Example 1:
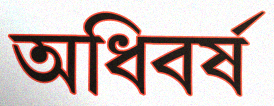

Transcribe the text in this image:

অধিবর্ষ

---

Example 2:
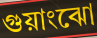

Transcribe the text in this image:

গুয়াংঝো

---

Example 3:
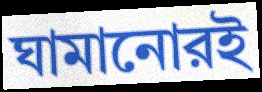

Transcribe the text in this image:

ঘামানোরই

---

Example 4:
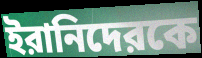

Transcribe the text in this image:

ইরানিদেরকে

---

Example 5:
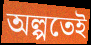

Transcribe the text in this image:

অল্পতেই